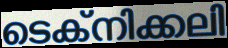
ടെക്‌നിക്കലി